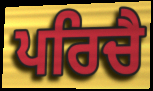
ਪਰਿਚੈ